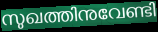
സുഖത്തിനുവേണ്ടി